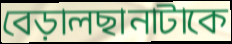
বেড়ালছানাটাকে